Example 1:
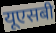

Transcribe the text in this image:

यूएसबी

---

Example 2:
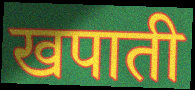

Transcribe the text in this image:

खपाती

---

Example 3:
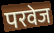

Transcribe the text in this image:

परवेज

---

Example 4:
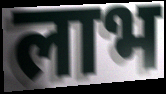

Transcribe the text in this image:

लाभ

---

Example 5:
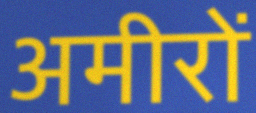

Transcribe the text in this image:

अमीरों